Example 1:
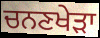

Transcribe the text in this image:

ਚਨਣਖੇੜਾ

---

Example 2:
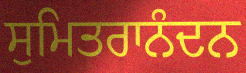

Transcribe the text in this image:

ਸੁਮਿਤਰਾਨੰਦਨ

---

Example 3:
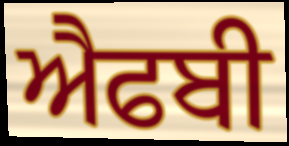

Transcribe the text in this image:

ਐਫਬੀ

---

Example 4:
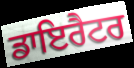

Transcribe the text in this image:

ਡਾਇਰੈਟਰ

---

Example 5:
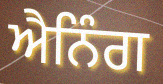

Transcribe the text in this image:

ਐਨਿੰਗ